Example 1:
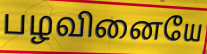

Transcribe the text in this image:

பழவினையே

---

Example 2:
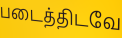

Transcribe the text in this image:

படைத்திடவே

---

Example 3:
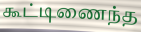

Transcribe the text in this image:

கூட்டிணைந்த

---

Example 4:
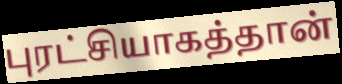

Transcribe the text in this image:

புரட்சியாகத்தான்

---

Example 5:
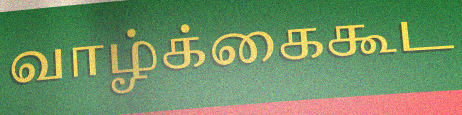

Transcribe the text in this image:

வாழ்க்கைகூட